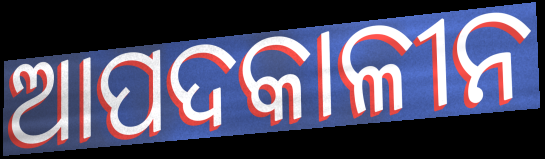
ଆପଦକାଳୀନ